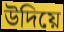
উদিয়ে